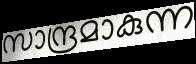
സാന്ദ്രമാകുന്ന